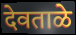
देवताळे